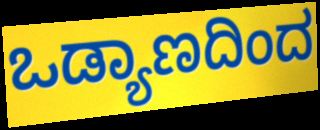
ಒಡ್ಯಾಣದಿಂದ